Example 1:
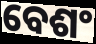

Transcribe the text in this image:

ବେଶଂ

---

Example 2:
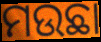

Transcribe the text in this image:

ମଉଛା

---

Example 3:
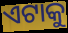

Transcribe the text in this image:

ଏଟାକୁ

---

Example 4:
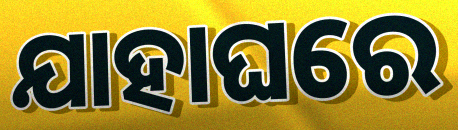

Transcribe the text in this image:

ଯାହାଘରେ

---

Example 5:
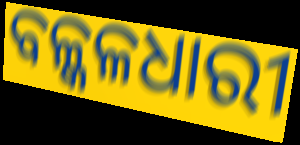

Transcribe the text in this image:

ବଳ୍କଳଧାରୀ